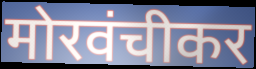
मोरवंचीकर